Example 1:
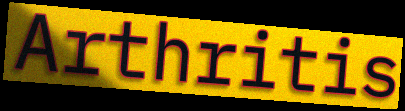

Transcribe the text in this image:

Arthritis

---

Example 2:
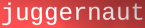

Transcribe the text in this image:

juggernaut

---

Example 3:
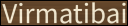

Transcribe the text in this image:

Virmatibai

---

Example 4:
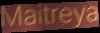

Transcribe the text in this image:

Maitreya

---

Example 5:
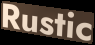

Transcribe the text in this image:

Rustic